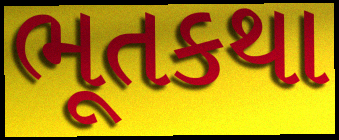
ભૂતકથા